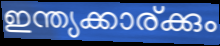
ഇന്ത്യക്കാര്ക്കും